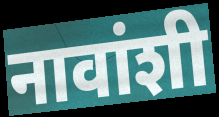
नावांशी